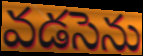
వడసెను